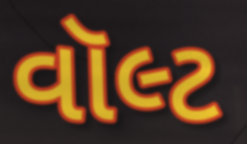
વૉલ્ટ